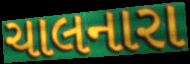
ચાલનારા